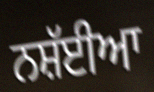
ਨਸ਼ੱਈਆ